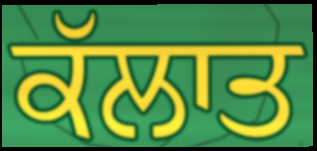
ਕੱਲਾਤ